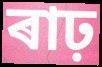
ৰাঢ়